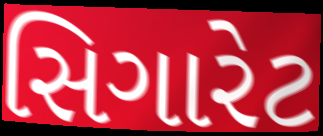
સિગારેટ